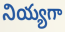
నియ్యగా